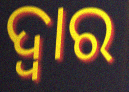
ଦ୍ବାର